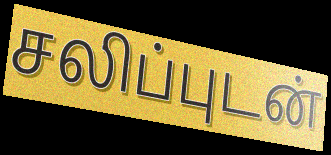
சலிப்புடன்